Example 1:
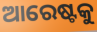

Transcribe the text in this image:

ଆରେଷ୍ଟକୁ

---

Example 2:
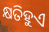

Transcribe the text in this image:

କ୍ଷତିହୁଏ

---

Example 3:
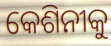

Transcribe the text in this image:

କେଶିନୀକୁ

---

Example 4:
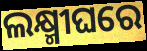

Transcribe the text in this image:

ଲକ୍ଷ୍ମୀଘରେ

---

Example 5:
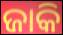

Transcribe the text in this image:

ଜାକି